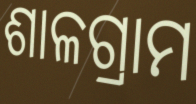
ଶାଳଗ୍ରାମ